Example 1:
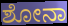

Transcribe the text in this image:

ಶೋನಾ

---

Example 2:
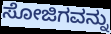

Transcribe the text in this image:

ಸೋಜಿಗವನ್ನು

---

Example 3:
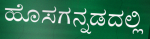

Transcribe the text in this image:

ಹೊಸಗನ್ನಡದಲ್ಲಿ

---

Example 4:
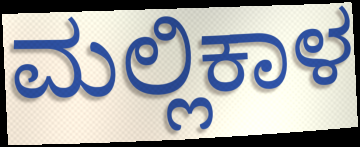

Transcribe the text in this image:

ಮಲ್ಲಿಕಾಳ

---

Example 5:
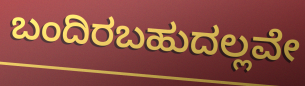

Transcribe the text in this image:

ಬಂದಿರಬಹುದಲ್ಲವೇ